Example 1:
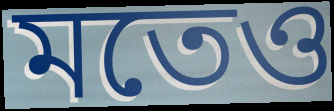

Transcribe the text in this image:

মতেও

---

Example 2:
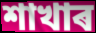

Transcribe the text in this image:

শাখাৰ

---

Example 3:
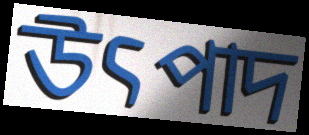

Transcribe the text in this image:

উৎপাদ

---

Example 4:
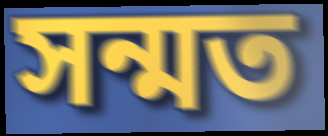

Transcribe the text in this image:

সন্মত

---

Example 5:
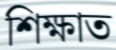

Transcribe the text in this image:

শিক্ষাত